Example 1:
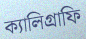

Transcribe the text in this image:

ক্যালিগ্রাফি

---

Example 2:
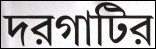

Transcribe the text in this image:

দরগাটির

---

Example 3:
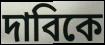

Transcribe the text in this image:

দাবিকে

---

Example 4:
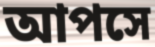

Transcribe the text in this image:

আপসে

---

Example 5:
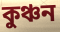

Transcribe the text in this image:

কুঞ্চন